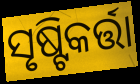
ସୃଷ୍ଟିକର୍ତ୍ତା